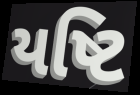
યષ્ટિ